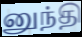
னுந்தி